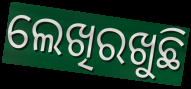
ଲେଖିରଖୁଛି